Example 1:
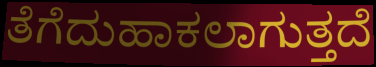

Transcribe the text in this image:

ತೆಗೆದುಹಾಕಲಾಗುತ್ತದೆ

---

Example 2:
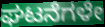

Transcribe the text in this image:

ಘಟನೆಗಳೇ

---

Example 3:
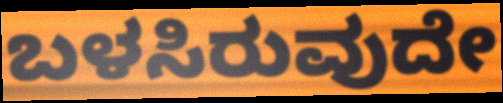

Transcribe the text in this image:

ಬಳಸಿರುವುದೇ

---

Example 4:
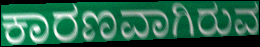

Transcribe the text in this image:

ಕಾರಣವಾಗಿರುವ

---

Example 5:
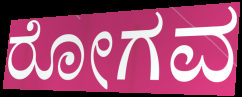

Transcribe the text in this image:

ರೋಗವ